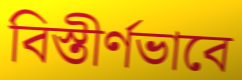
বিস্তীর্ণভাবে